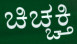
ಚಿಚ್ಚಕ್ತಿ